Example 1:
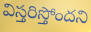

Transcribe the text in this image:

విస్తరిస్తోందని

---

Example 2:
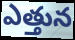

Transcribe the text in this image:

ఎత్తున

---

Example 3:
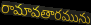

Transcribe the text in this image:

రామావతారమును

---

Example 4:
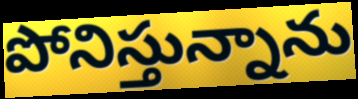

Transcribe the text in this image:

పోనిస్తున్నాను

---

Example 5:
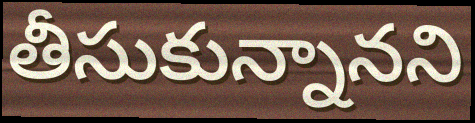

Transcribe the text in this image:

తీసుకున్నానని